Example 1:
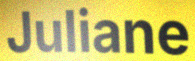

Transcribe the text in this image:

Juliane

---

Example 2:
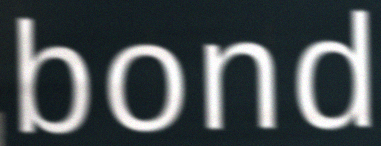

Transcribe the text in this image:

bond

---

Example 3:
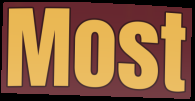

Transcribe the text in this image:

Most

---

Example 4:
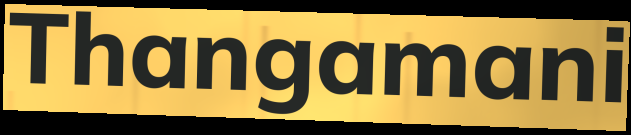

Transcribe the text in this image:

Thangamani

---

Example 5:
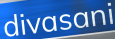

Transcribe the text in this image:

divasani